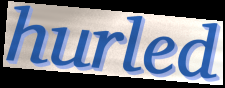
hurled